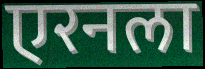
एरनला